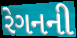
રેગનની